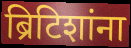
ब्रिटिशांना